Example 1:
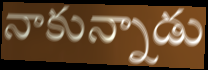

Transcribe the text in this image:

నాకున్నాడు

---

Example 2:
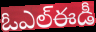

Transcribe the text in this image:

ఓఎల్ఈడీ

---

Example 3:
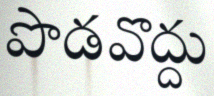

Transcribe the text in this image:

పొడవొద్దు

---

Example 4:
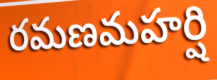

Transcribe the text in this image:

రమణమహర్షి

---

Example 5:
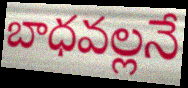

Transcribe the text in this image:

బాధవల్లనే